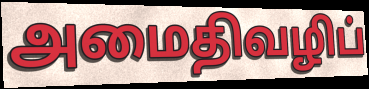
அமைதிவழிப்